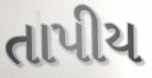
તાપીય